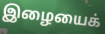
இழையைக்